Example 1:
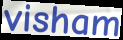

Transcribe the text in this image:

visham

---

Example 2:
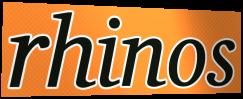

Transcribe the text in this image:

rhinos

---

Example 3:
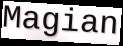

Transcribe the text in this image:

Magian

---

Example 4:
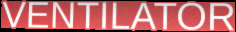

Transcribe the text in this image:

VENTILATOR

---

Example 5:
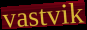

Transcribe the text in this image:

vastvik